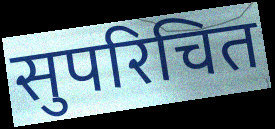
सुपरिचित